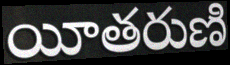
యీతరుణి